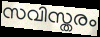
സവിസ്തരം